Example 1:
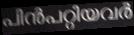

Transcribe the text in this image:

പിൻപറ്റിയവർ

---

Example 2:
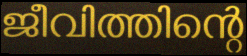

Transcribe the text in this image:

ജീവിത്തിന്റെ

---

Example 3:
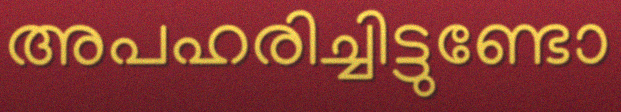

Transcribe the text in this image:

അപഹരിച്ചിട്ടുണ്ടോ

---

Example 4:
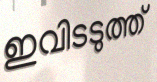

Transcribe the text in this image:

ഇവിടടുത്ത്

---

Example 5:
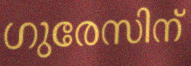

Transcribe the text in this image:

ഗുരേസിന്